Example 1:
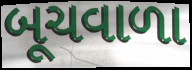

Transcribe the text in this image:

બૂચવાળા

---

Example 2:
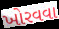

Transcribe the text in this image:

ખોરવવા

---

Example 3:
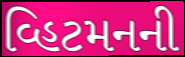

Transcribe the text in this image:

વ્હિટમનની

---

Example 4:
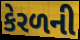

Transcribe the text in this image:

કેરળની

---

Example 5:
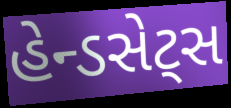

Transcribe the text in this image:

હેન્ડસેટ્સ